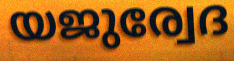
യജുര്വേദ